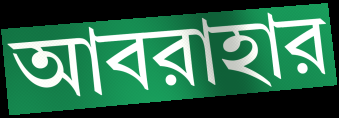
আবরাহার